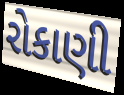
રોકાણી